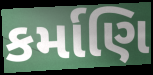
કર્માણિ